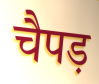
चैपड़